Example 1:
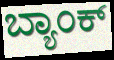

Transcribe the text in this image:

ಬ್ಯಾಂಕ್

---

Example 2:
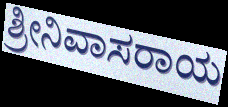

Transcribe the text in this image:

ಶ್ರೀನಿವಾಸರಾಯ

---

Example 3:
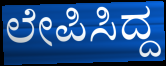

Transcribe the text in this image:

ಲೇಪಿಸಿದ್ದ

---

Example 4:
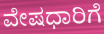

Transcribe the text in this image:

ವೇಷಧಾರಿಗೆ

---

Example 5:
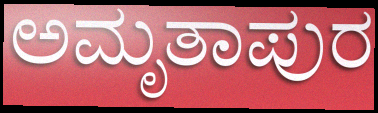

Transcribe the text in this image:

ಅಮೃತಾಪುರ